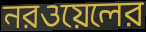
নরওয়েলের